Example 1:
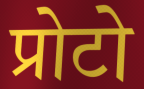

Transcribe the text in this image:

प्रोटो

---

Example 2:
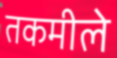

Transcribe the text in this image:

तकमीले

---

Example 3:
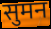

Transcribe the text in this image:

सुमन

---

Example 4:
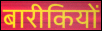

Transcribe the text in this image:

बारीकियों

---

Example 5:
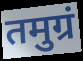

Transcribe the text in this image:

तमुग्रं